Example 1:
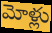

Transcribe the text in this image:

మోళ్లు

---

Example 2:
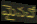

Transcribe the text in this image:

మైనచో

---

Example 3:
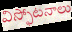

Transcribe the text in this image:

విస్ఫోటనాలు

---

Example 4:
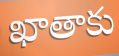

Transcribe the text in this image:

ఖాతాకు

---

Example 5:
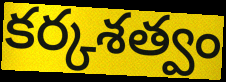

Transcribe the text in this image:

కర్కశత్వం